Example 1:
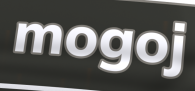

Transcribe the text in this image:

mogoj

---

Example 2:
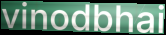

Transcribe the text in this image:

vinodbhai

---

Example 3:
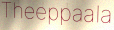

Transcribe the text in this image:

Theeppaala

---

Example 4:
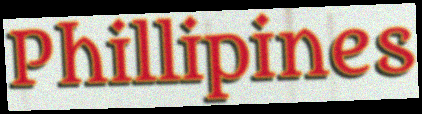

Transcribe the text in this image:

Phillipines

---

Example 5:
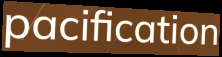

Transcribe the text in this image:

pacification